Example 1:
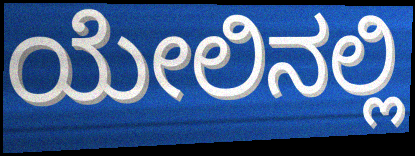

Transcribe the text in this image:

ಯೇಲಿನಲ್ಲಿ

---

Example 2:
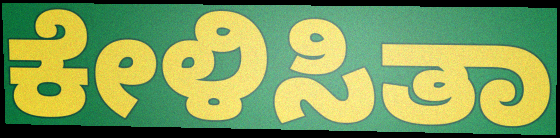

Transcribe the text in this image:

ಕೇಳಿಸಿತಾ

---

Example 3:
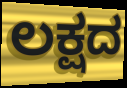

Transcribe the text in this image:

ಲಕ್ಷದ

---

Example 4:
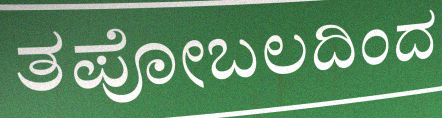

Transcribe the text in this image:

ತಪೋಬಲದಿಂದ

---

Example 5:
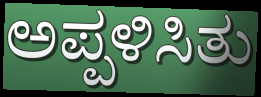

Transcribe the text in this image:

ಅಪ್ಪಳಿಸಿತು